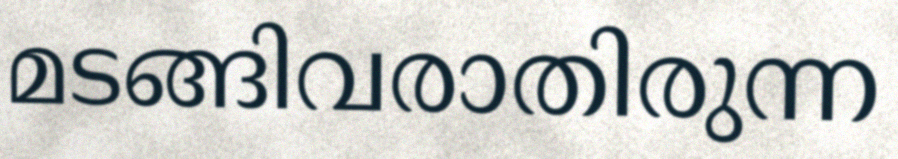
മടങ്ങിവരാതിരുന്ന